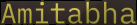
Amitabha